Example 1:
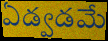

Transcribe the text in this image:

ఏడ్వడమే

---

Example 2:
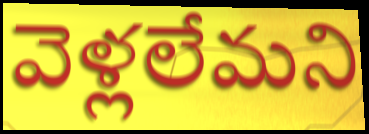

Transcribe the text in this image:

వెళ్లలేమని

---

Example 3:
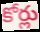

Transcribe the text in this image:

కోర్లు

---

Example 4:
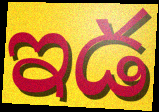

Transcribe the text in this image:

ఇడ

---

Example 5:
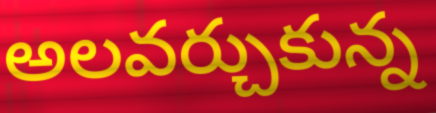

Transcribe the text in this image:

అలవర్చుకున్న